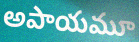
అపాయమూ